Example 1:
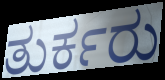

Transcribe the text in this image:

ತುರ್ಕರು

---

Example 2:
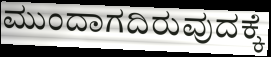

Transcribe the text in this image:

ಮುಂದಾಗದಿರುವುದಕ್ಕೆ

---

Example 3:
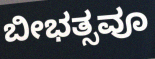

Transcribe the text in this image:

ಬೀಭತ್ಸವೂ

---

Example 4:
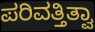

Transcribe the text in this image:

ಪರಿವತ್ತಿತ್ವಾ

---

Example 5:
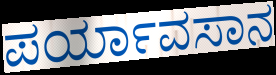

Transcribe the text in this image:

ಪರ್ಯಾವಸಾನ